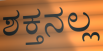
ಶಕ್ತನಲ್ಲ